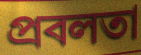
প্ৰবলতা